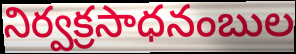
నిర్వక్రసాధనంబుల